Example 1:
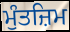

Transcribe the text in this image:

ਮੁੰਤਜ਼ਿਮ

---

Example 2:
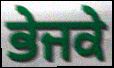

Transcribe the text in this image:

ਭੇਜਕੇ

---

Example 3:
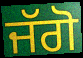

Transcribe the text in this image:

ਜੱਗੋ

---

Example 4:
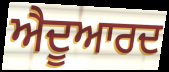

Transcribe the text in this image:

ਐਦੂਆਰਦ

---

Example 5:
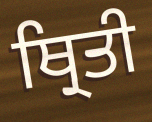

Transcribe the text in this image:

ਥ੍ਰਿਤੀ